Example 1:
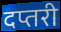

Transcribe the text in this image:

दप्तरी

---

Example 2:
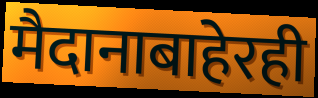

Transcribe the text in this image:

मैदानाबाहेरही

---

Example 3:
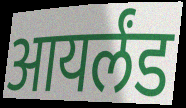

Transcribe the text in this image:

आयर्लंड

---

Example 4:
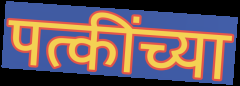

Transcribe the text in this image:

पत्कींच्या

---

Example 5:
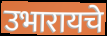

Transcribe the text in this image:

उभारायचे